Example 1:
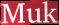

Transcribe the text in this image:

Muk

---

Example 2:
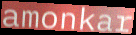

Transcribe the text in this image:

amonkar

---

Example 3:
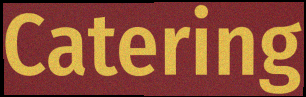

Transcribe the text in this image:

Catering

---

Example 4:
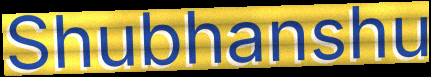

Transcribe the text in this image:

Shubhanshu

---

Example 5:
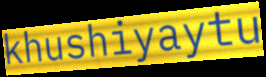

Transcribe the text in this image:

khushiyaytu